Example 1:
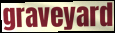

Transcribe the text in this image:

graveyard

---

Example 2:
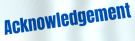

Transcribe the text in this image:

Acknowledgement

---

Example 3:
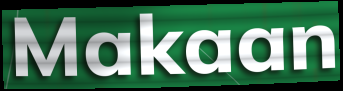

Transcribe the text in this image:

Makaan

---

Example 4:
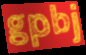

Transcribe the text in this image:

gpbj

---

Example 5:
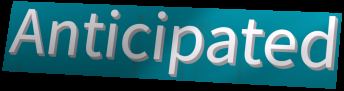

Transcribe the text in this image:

Anticipated